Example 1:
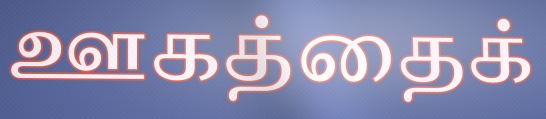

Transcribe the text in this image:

ஊகத்தைக்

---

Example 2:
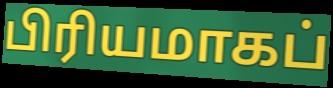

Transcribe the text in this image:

பிரியமாகப்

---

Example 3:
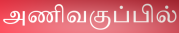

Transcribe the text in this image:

அணிவகுப்பில்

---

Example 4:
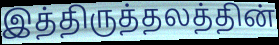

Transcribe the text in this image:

இத்திருத்தலத்தின்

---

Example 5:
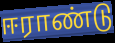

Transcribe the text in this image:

ஈராண்டு